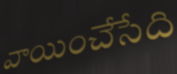
వాయించేసేది